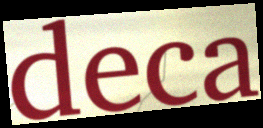
deca